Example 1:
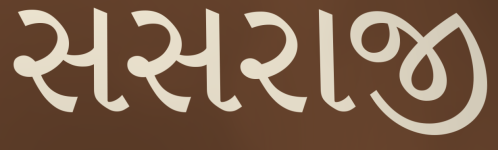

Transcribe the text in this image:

સસરાજી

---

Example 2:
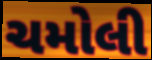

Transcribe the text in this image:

ચમોલી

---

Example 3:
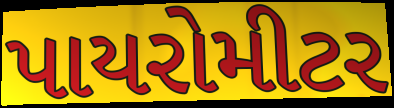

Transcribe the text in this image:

પાયરોમીટર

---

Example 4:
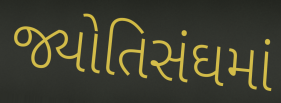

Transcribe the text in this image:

જ્યોતિસંઘમાં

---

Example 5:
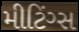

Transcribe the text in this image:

મીટિંગ્સ